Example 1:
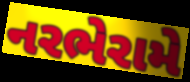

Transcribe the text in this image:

નરભેરામે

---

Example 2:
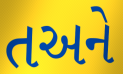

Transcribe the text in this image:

તઅને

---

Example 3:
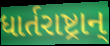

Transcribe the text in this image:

ધાર્તરાષ્ટ્રાન્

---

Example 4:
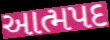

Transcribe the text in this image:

આત્મપદ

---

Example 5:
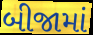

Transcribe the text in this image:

બીજામાં